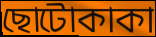
ছোটোকাকা